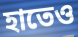
হাতেও